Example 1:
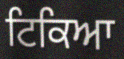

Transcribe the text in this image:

ਟਿਕਿਆ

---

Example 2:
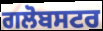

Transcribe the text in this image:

ਗਲੋਬਸਟਰ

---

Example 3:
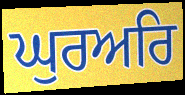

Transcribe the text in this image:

ਘੁਰਅਰਿ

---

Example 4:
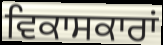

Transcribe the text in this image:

ਵਿਕਾਸਕਾਰਾਂ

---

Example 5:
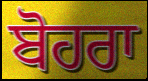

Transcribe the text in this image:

ਬੋਹਰਾ